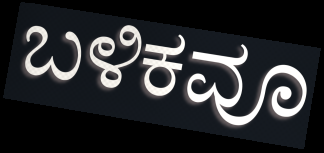
ಬಳಿಕವೂ